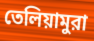
তেলিয়ামুরা